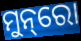
ମୁନ୍‌ରୋ